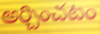
అర్చించటం